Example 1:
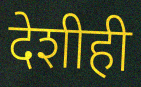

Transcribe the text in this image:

देशीही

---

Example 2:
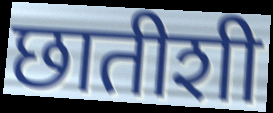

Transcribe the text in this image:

छातीशी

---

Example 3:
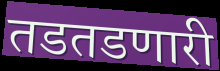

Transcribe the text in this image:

तडतडणारी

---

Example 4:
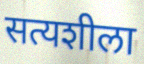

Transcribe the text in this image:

सत्यशीला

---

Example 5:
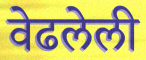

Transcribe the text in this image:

वेढलेली